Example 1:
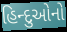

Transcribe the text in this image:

હિન્દુઓનો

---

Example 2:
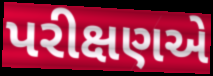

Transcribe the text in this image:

પરીક્ષણએ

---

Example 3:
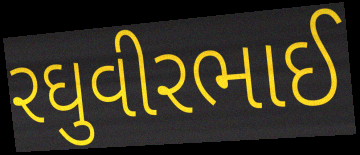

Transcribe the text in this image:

રઘુવીરભાઈ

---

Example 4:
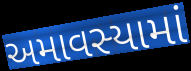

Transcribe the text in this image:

અમાવસ્યામાં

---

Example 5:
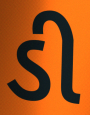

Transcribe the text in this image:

ડી